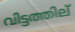
വിട്ടത്തില്